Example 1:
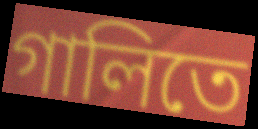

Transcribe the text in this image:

গালিতে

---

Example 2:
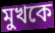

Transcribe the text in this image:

মুখকে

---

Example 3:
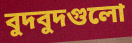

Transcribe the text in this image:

বুদবুদগুলো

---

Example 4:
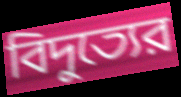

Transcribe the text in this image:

বিদুত্যের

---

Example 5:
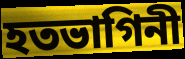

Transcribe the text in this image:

হতভাগিনী